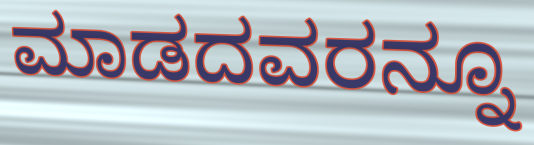
ಮಾಡದವರನ್ನೂ